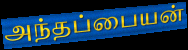
அந்தப்பையன்